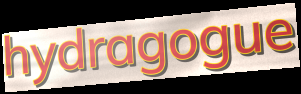
hydragogue